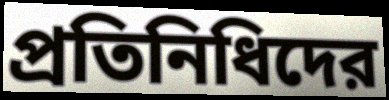
প্রতিনিধিদের